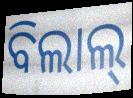
ବିଲାଲ୍